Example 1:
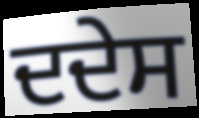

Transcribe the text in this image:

ਦਦੇਸ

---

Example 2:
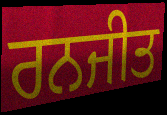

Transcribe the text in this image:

ਰਨਜੀਤ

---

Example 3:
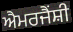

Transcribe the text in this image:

ਐਮਰਜੈਂਸ਼ੀ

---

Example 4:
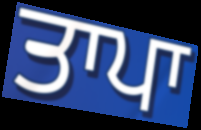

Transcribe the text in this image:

ਤਾਪਾ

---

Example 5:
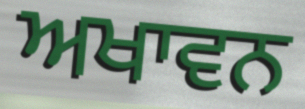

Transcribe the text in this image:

ਅਖਾਵਨ